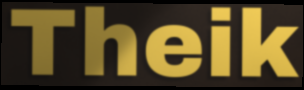
Theik